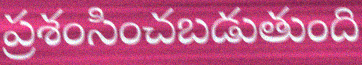
ప్రశంసించబడుతుంది